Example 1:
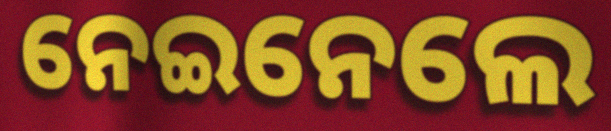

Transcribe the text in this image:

ନେଇନେଲେ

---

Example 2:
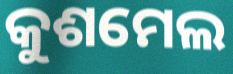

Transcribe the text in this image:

କୁଶମେଲ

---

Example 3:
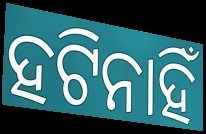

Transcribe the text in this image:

ହଟିନାହିଁ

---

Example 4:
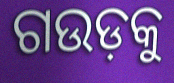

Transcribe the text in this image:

ଗଉଡ଼କୁ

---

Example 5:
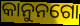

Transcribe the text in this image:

କାନୁନଗୋ